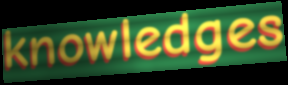
knowledges